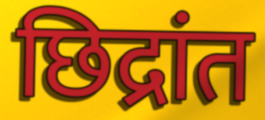
छिद्रांत